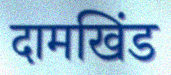
दामखिंड